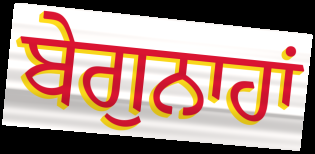
ਬੇਗੁਨਾਹਾਂ